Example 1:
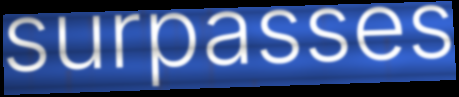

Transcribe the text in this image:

surpasses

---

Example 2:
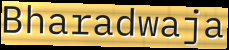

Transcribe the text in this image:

Bharadwaja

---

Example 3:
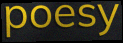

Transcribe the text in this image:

poesy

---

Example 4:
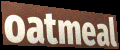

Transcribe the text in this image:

oatmeal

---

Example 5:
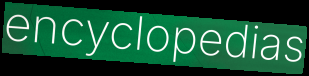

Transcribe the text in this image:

encyclopedias